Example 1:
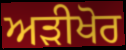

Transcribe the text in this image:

ਅੜੀਖੋਰ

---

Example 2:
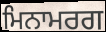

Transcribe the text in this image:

ਮਿਨਾਮਰਗ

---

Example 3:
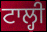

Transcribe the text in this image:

ਟਾਲ੍ਹੀ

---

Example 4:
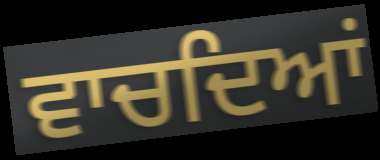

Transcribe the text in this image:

ਵਾਚਦਿਆਂ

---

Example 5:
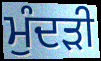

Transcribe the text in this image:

ਮੁੰਦੜੀ